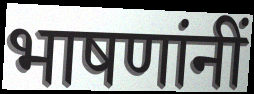
भाषणांनीं